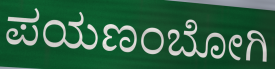
ಪಯಣಂಬೋಗಿ